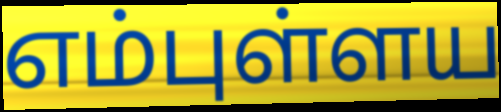
எம்புள்ளய